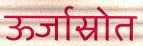
ऊर्जास्रोत